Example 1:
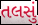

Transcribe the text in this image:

તલસું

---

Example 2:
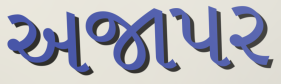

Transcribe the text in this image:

અજાપર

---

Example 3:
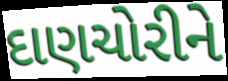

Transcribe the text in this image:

દાણચોરીને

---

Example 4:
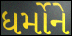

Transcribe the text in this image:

ધર્મોને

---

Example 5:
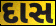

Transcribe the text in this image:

દાસ